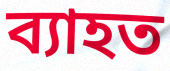
ব্যাহত